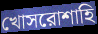
খোসরোশাহি